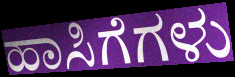
ಹಾಸಿಗೆಗಳು